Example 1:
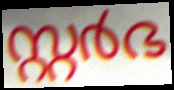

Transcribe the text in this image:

സ്റ്റർഭ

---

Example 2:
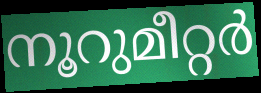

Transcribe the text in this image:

നൂറുമീറ്റർ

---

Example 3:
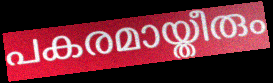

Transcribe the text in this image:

പകരമായ്തീരും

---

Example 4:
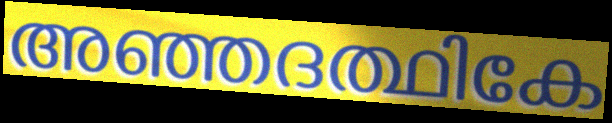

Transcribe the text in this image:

അഞ്ഞദത്ഥികേ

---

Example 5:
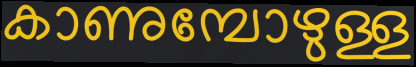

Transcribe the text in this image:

കാണുമ്പോഴുള്ള